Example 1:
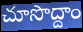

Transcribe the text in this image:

చూసొద్దాం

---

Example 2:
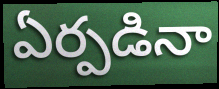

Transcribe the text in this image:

ఏర్పడినా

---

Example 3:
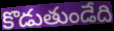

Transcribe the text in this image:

కొడుతుండేది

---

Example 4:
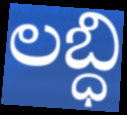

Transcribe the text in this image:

లబ్ధి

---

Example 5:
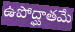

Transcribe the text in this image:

ఉపోద్ఘాతమే